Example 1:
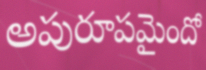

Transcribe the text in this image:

అపురూపమైందో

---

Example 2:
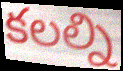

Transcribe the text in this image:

కలల్ని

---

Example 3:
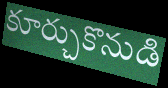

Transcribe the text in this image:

కూర్చుకొనుడి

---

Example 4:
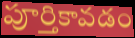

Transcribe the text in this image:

పూర్తికావడం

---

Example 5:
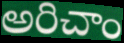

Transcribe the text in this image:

అరిచాం